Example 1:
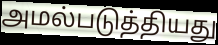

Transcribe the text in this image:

அமல்படுத்தியது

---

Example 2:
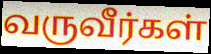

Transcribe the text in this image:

வருவீர்கள்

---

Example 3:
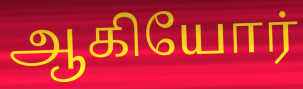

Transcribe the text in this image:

ஆகியோர்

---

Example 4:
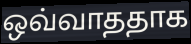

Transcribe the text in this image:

ஒவ்வாததாக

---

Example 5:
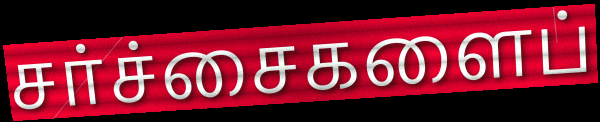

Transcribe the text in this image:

சர்ச்சைகளைப்